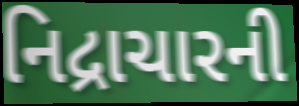
નિદ્રાચારની